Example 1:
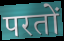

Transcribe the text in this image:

परतों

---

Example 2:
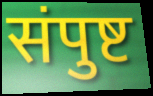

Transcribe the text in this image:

संपुष्ट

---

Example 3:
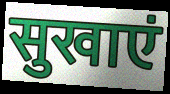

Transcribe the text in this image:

सुखाएं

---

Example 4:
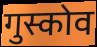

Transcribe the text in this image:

गुस्कोव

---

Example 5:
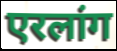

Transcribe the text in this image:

एरलांग